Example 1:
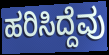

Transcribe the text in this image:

ಹರಿಸಿದ್ದೆವು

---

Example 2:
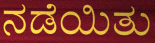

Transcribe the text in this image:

ನಡೆಯಿತು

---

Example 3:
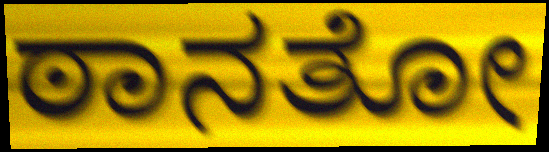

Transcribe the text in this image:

ಠಾನತೋ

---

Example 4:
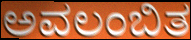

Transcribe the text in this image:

ಅವಲಂಬಿತ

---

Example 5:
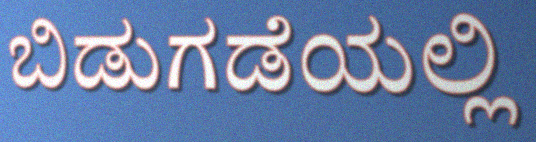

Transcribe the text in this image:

ಬಿಡುಗಡೆಯಲ್ಲಿ